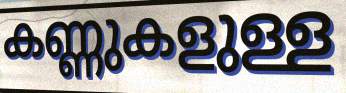
കണ്ണുകളുള്ള